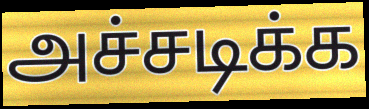
அச்சடிக்க